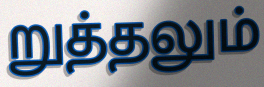
றுத்தலும்